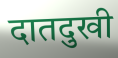
दातदुखी